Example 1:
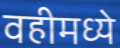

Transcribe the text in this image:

वहीमध्ये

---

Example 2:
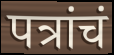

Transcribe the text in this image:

पत्रांचं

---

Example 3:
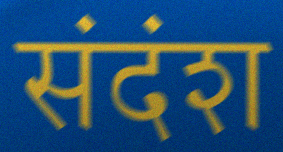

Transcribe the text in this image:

संदंश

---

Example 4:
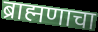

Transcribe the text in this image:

ब्राह्मणाचा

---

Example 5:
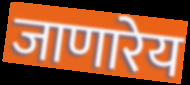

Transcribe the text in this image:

जाणारेय